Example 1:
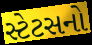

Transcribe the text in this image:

સ્ટેટસનો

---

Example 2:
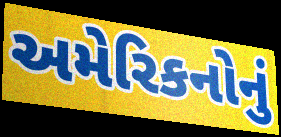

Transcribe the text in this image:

અમેરિકનોનું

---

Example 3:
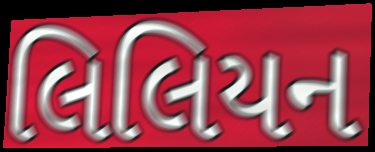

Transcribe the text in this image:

લિલિયન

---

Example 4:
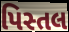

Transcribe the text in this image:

પિસ્તલ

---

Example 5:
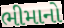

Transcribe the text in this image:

ભીમાનો